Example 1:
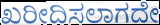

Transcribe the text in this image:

ಖರೀದಿಸಲಾಗದೇ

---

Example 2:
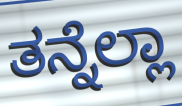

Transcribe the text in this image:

ತನ್ನೆಲ್ಲಾ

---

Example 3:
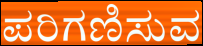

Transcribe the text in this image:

ಪರಿಗಣಿಸುವ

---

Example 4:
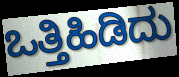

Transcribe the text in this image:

ಒತ್ತಿಹಿಡಿದು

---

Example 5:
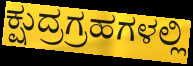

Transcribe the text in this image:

ಕ್ಷುದ್ರಗ್ರಹಗಳಲ್ಲಿ